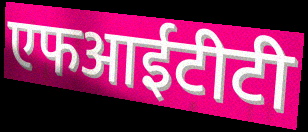
एफआईटीटी